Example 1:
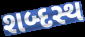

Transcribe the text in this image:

શબ્દસ્થ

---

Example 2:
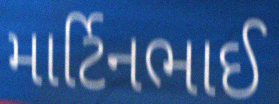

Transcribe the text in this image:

માર્ટિનભાઈ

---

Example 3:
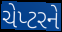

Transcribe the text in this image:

ચેપ્ટરને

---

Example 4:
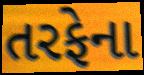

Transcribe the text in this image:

તરફેના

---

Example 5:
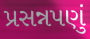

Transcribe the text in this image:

પ્રસન્નપણું